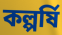
কল্পর্ষি